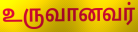
உருவானவர்